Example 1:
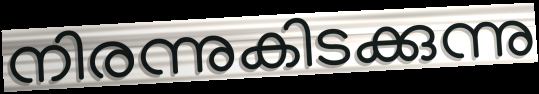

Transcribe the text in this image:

നിരന്നുകിടക്കുന്നു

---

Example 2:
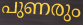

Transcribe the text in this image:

പുണരും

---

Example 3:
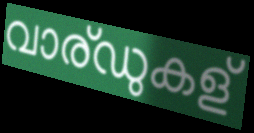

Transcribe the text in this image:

വാര്ഡുകള്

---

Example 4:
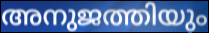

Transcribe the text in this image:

അനുജത്തിയും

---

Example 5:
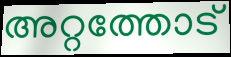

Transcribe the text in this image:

അറ്റത്തോട്